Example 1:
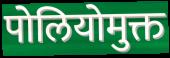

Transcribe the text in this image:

पोलियोमुक्त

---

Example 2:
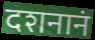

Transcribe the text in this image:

दशनानं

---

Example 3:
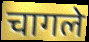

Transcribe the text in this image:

चागले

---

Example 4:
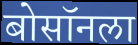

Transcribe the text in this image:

बोसॉनला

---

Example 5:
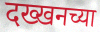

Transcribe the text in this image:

दख्खनच्या